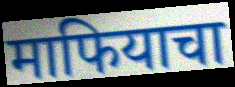
माफियाचा